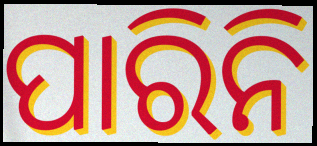
ପାରିନି